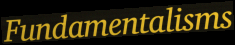
Fundamentalisms